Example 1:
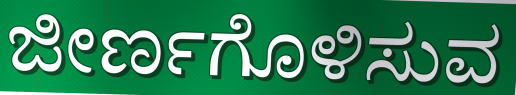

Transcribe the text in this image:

ಜೀರ್ಣಗೊಳಿಸುವ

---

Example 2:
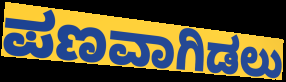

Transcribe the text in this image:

ಪಣವಾಗಿಡಲು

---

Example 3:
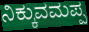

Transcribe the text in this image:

ನಿಕ್ಕುವಮಪ್ಪ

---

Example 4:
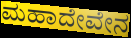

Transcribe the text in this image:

ಮಹಾದೇವೇನ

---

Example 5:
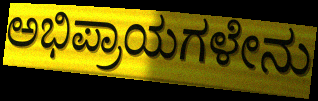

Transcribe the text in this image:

ಅಭಿಪ್ರಾಯಗಳೇನು